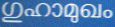
ഗുഹാമുഖം